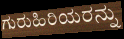
ಗುರುಹಿರಿಯರನ್ನು